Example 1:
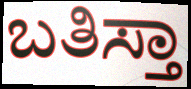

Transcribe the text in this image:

ಬತಿಸ್ತಾ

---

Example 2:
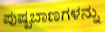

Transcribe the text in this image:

ಪುಷ್ಪಬಾಣಗಳನ್ನು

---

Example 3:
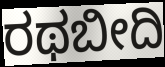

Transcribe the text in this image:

ರಥಬೀದಿ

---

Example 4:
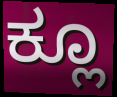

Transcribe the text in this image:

ಕ್ಲೂ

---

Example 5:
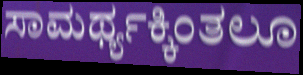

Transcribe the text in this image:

ಸಾಮರ್ಥ್ಯಕ್ಕಿಂತಲೂ